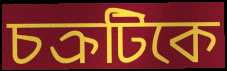
চক্রটিকে